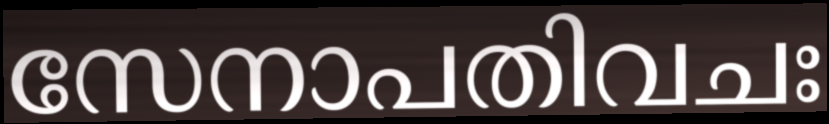
സേനാപതിവചഃ